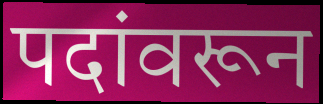
पदांवरून